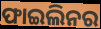
ଫାଇଲିନର